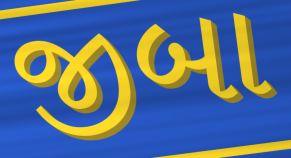
જીબા